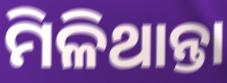
ମିଳିଥାନ୍ତା